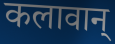
कलावान्